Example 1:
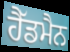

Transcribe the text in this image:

ਹੈੱਡਮੈਨ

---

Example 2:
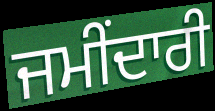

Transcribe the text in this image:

ਜਮੀਂਦਾਰੀ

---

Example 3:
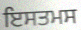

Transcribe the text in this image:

ਇਸਤਮਸ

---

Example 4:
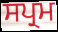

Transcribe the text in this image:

ਸਪ੍ਰਮ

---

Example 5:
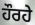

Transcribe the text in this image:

ਹੌਰਹੇ